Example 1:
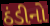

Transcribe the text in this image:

ઠંડીનો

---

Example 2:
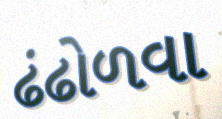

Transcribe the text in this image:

ઢંઢોળવા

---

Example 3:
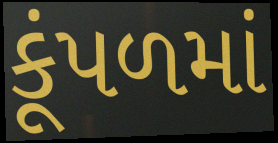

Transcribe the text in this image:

કૂંપળમાં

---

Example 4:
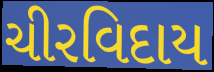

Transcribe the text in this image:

ચીરવિદાય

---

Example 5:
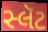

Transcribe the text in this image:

સ્લૅટ